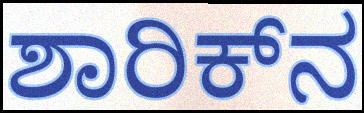
ಶಾರಿಕ್‌ನ